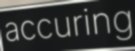
accuring